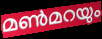
മൺമറയും